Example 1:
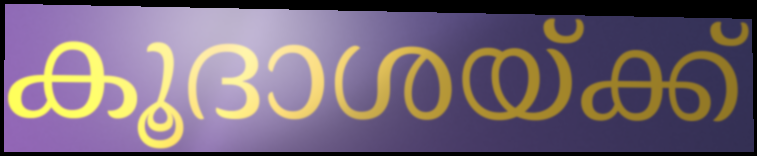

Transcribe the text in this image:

കൂദാശയ്ക്ക്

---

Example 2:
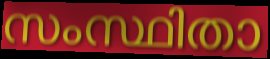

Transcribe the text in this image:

സംസ്ഥിതാ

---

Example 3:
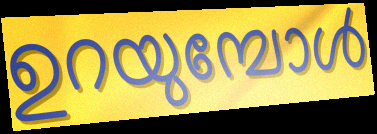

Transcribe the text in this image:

ഉറയുമ്പോൾ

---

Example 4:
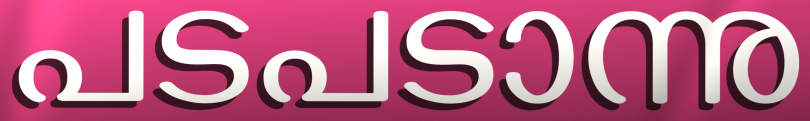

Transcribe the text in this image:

പടപടാന്നു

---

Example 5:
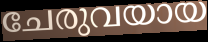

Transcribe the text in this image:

ചേരുവയായ